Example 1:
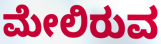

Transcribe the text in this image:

ಮೇಲಿರುವ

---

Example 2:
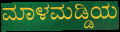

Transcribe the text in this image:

ಮಾಳಮಡ್ಡಿಯ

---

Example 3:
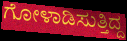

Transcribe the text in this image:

ಗೋಳಾಡಿಸುತ್ತಿದ್ದ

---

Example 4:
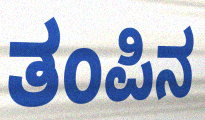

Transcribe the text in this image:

ತಂಪಿನ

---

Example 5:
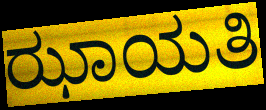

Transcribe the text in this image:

ಝಾಯತಿ